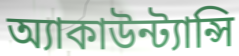
অ্যাকাউন্ট্যান্সি